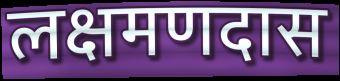
लक्षमणदास